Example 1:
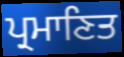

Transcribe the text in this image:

ਪ੍ਰਮਾਣਿਤ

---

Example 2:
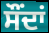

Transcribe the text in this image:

ਸੌਂਦਾਂ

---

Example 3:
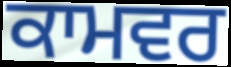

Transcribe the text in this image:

ਕਾਮਵਰ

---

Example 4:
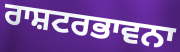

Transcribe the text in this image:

ਰਾਸ਼ਟਰਭਾਵਨਾ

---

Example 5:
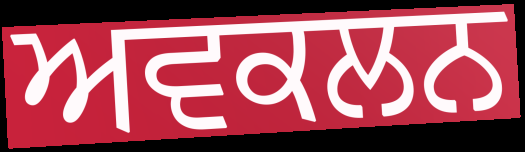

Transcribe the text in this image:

ਅਵਕਲਨ